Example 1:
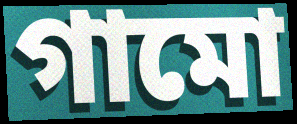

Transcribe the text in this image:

গামো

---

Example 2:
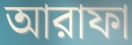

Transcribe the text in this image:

আরাফা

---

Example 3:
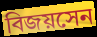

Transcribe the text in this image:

বিজয়সেন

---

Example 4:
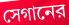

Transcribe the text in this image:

সেগানের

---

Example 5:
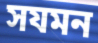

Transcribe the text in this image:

সযমন